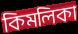
কিমলিকা